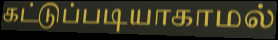
கட்டுப்படியாகாமல்